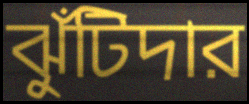
ঝুঁটিদার